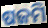
ଷଜମି